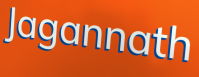
Jagannath